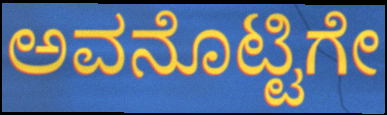
ಅವನೊಟ್ಟಿಗೇ